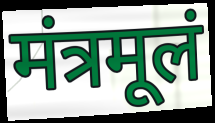
मंत्रमूलं